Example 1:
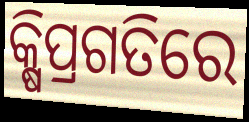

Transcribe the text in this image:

କ୍ଷିପ୍ରଗତିରେ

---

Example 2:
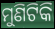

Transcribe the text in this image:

ମୁଣିଟିକି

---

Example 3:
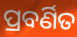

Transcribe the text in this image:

ପ୍ରବର୍ଣିତ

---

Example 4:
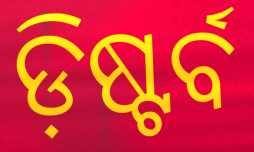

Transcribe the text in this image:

ଡ଼ିଷ୍ଟର୍ବ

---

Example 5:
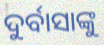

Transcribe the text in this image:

ଦୁର୍ବାସାଙ୍କୁ